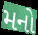
મનો